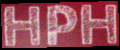
HPH